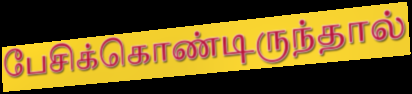
பேசிக்கொண்டிருந்தால்